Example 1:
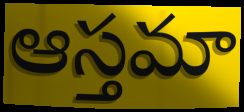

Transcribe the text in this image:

ఆస్తమా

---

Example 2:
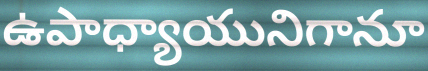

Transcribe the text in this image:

ఉపాధ్యాయునిగానూ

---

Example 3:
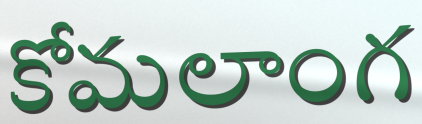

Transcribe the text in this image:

కోమలాంగ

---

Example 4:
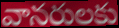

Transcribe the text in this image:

వానరులకు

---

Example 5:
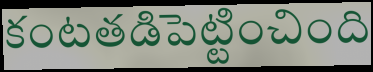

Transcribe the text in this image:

కంటతడిపెట్టించింది